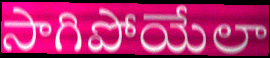
సాగిపోయేలా